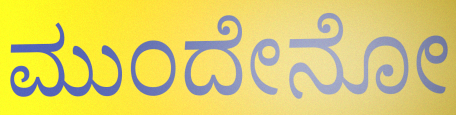
ಮುಂದೇನೋ